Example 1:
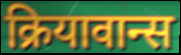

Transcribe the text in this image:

क्रियावान्स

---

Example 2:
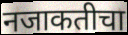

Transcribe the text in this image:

नजाकतीचा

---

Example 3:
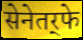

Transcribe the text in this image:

सेनेतर्फे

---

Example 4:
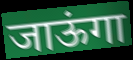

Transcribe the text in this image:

जाऊंगा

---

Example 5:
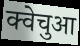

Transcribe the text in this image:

क्वेचुआ